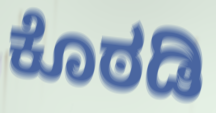
ಕೊಠಡಿ